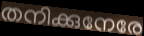
തനിക്കുനേരേ